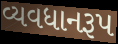
વ્યવધાનરૂપ